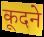
कूदने